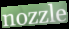
nozzle